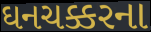
ઘનચક્કરના